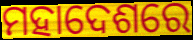
ମହାଦେଶରେ